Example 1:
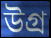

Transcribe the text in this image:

উগ্র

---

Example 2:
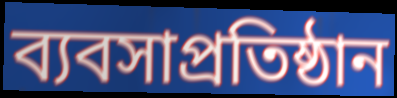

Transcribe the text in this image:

ব্যবসাপ্রতিষ্ঠান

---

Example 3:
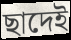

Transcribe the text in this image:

ছাদেই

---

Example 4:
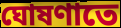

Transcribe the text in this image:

ঘোষণাতে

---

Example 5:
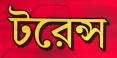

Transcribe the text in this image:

টরেন্স